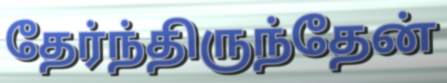
தேர்ந்திருந்தேன்